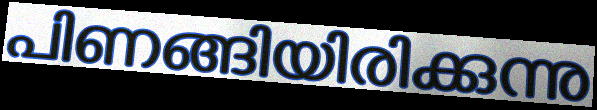
പിണങ്ങിയിരിക്കുന്നു